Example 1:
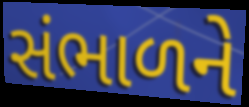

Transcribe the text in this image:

સંભાળને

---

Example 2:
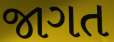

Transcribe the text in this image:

જાગત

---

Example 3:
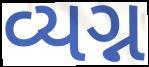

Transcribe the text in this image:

વ્યગ્ન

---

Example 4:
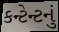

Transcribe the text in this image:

કન્ટેન્ટનું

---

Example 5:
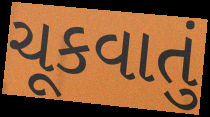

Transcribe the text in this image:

ચૂકવાતું